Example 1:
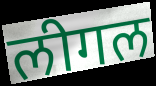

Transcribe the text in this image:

लीगल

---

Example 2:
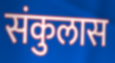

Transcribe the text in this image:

संकुलास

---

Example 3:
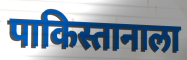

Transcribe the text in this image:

पाकिस्तानाला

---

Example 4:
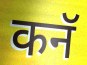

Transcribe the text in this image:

कनॅ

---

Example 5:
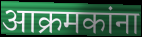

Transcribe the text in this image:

आक्रमकांना